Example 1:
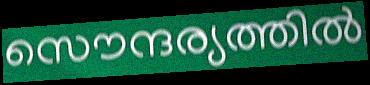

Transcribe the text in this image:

സൌന്ദര്യത്തിൽ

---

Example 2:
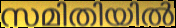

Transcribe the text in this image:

സമിതിയിൽ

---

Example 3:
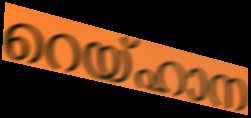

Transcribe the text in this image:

റെയ്ഹാന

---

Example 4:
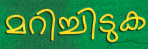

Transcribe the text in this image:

മറിച്ചിടുക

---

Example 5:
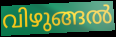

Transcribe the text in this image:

വിഴുങ്ങൽ